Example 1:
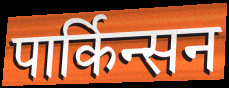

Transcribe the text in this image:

पार्किन्सन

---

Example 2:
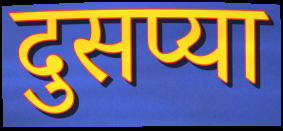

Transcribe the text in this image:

दुसप्या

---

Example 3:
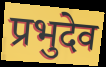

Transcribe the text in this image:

प्रभुदेव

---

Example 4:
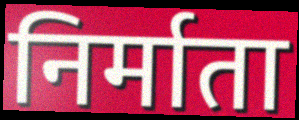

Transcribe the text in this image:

निर्माता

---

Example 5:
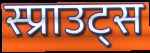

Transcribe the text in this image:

स्प्राउट्स